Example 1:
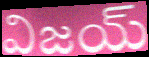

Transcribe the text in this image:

విజయ్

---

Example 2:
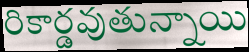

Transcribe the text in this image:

రికార్డవుతున్నాయి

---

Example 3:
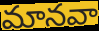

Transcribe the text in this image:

మానవా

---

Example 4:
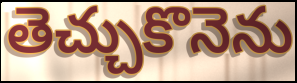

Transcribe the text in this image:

తెచ్చుకొనెను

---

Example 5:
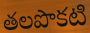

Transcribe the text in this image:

తలపొకటి